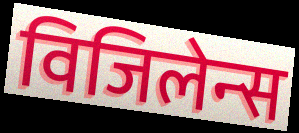
विजिलेन्स